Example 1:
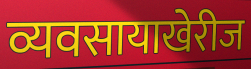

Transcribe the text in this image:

व्यवसायाखेरीज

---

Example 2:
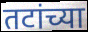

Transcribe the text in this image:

तटांच्या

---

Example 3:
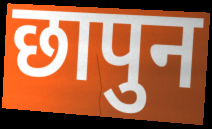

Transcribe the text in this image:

छापुन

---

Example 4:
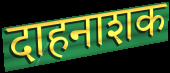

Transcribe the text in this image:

दाहनाशक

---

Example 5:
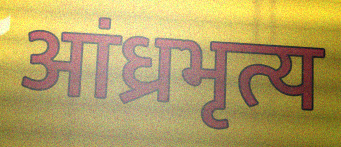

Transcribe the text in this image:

आंध्रभृत्य